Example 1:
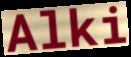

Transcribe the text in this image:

Alki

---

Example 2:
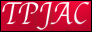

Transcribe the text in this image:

TPJAC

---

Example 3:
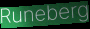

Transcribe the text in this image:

Runeberg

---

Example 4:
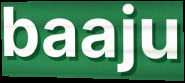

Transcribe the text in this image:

baaju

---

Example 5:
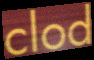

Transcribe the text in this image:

clod